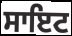
ਸਾਇਟ